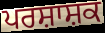
ਪਰਸ਼ਾਸ਼ਕ